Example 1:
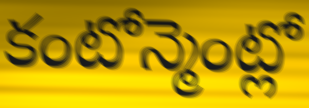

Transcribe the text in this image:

కంటోన్మెంట్లో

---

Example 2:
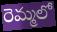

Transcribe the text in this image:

రెమ్మలో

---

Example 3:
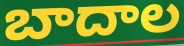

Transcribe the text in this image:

బాదాల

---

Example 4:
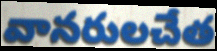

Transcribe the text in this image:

వానరులచేత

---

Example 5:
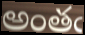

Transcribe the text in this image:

అంతఁ